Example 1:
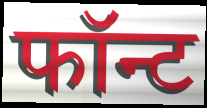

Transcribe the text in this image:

फॉन्ट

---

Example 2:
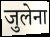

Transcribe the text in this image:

जुलेना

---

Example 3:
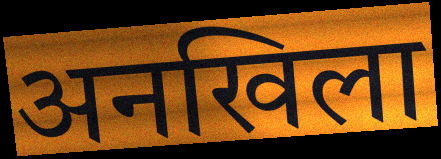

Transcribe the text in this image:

अनखिला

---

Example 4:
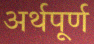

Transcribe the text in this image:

अर्थपूर्ण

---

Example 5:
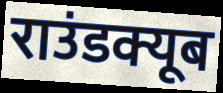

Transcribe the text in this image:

राउंडक्यूब